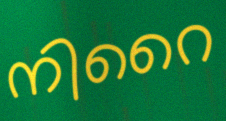
നിറൈ